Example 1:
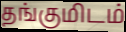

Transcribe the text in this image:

தங்குமிடம்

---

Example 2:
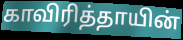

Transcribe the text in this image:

காவிரித்தாயின்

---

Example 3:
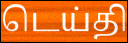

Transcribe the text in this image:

டெய்தி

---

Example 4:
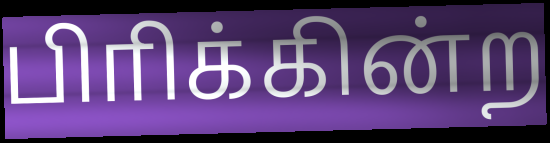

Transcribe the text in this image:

பிரிக்கின்ற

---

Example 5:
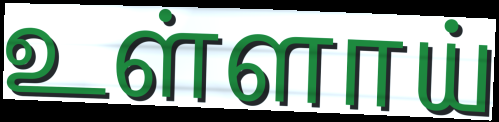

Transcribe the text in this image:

உள்ளாய்